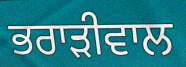
ਭਰਾੜੀਵਾਲ